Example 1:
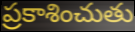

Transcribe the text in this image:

ప్రకాశించుతు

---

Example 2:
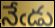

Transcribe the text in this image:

నేఁడు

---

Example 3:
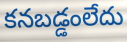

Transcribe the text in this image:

కనబడ్డంలేదు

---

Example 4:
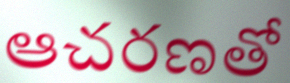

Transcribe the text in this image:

ఆచరణతో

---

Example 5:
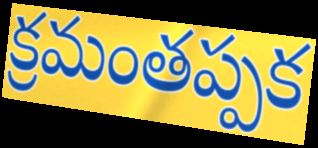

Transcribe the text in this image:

క్రమంతప్పక